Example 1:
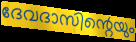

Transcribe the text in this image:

ദേവദാസിന്റെയും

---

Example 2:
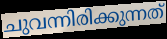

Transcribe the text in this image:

ചുവന്നിരിക്കുന്നത്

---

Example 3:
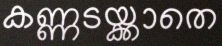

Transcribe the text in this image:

കണ്ണടയ്ക്കാതെ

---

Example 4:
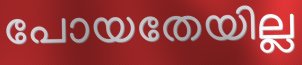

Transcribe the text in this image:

പോയതേയില്ല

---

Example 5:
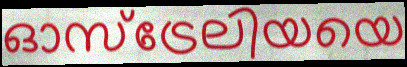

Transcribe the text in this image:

ഓസ്ട്രേലിയയെ